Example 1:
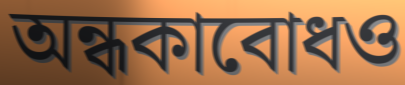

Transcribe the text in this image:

অন্ধকাবোধও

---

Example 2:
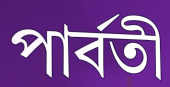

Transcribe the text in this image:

পার্বতী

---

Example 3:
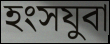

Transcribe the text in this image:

হংসযুবা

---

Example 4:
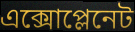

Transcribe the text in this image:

এক্সোপ্লেনেট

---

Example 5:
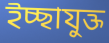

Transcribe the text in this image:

ইচ্ছাযুক্ত